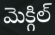
మెక్గిల్